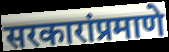
सरकारांप्रमाणे